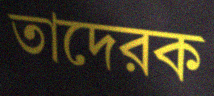
তাদেরক